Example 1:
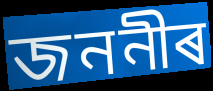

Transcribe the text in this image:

জননীৰ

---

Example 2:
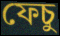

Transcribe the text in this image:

ফেচু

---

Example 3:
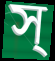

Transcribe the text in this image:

স্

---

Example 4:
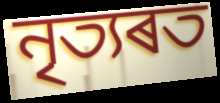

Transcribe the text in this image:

নৃত্যৰত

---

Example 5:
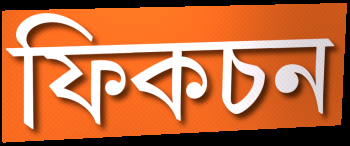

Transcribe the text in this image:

ফিকচন